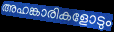
അഹങ്കാരികളോടും